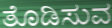
ತೊಡಿಸುವ